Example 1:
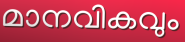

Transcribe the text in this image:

മാനവികവും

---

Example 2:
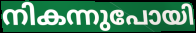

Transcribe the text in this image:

നികന്നുപോയി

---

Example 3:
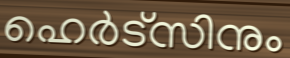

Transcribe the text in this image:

ഹെർട്സിനും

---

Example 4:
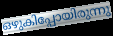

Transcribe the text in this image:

ഒഴുകിപ്പോയിരുന്നു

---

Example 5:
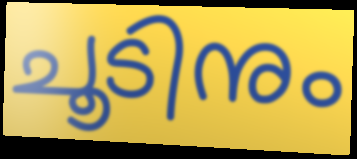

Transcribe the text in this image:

ചൂടിനും